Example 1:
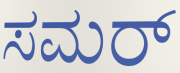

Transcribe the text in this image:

ಸಮರ್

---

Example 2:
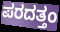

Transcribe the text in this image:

ಪರದತ್ತಂ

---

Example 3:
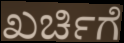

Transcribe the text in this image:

ಖರ್ಚಿಗೆ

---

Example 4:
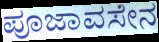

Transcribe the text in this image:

ಪೂಜಾವಸೇನ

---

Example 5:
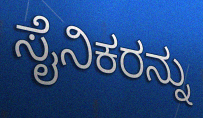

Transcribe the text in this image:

ಸೈನಿಕರನ್ನು